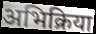
अभिक्रिया